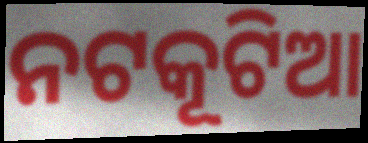
ନଟକୂଟିଆ